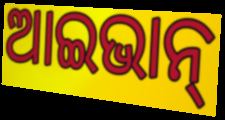
ଆଇଭାନ୍